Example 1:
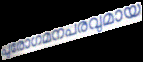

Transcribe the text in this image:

പുരോഗമനപരവുമായ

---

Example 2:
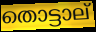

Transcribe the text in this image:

തൊട്ടാല്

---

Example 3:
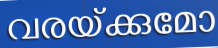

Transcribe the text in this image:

വരയ്‌ക്കുമോ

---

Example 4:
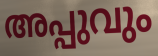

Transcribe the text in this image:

അപ്പുവും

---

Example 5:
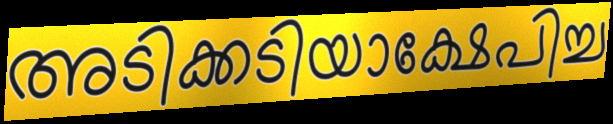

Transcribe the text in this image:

അടിക്കടിയാക്ഷേപിച്ച